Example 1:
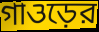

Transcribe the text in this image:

গাওড়ের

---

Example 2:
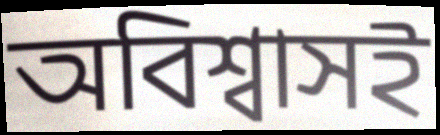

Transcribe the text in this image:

অবিশ্বাসই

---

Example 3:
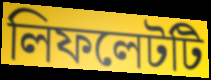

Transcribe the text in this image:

লিফলেটটি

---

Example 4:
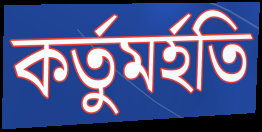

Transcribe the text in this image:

কর্তুমর্হতি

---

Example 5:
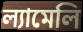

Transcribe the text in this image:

ল্যামেলি